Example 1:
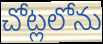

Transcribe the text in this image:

చోట్లలోను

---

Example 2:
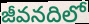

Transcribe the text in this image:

జీవనదిలో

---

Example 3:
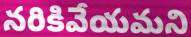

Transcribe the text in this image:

నరికివేయమని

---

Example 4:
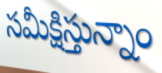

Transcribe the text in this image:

సమీక్షిస్తున్నాం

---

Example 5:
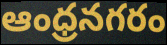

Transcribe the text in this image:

ఆంధ్రనగరం